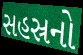
સહસ્રનો